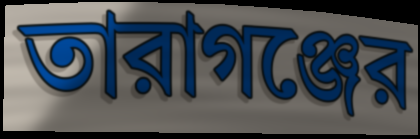
তারাগঞ্জের